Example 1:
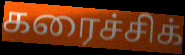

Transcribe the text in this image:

கரைச்சிக்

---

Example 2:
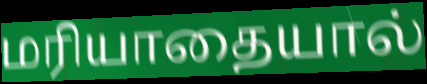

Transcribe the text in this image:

மரியாதையால்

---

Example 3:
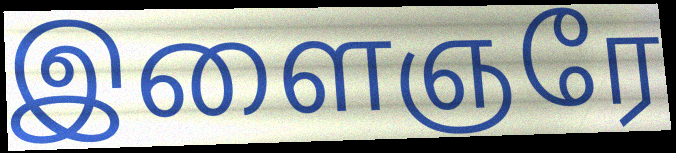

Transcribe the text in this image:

இளைஞரே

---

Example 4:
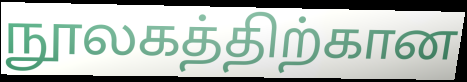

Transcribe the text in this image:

நூலகத்திற்கான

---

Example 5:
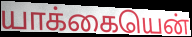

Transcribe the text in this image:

யாக்கையென்